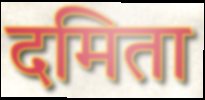
दमिता